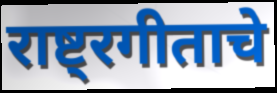
राष्ट्रगीताचे